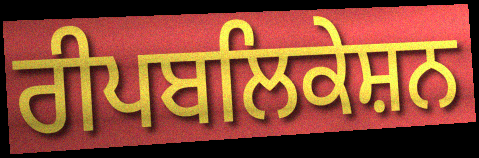
ਰੀਪਬਲਿਕੇਸ਼ਨ